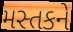
મસ્તકને